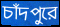
চাঁদপুরে